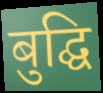
बुद्घि